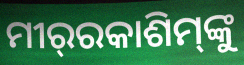
ମୀର୍‌ରକାଶିମ୍‌ଙ୍କୁ